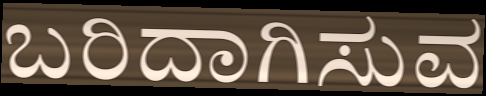
ಬರಿದಾಗಿಸುವ